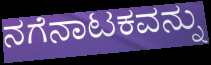
ನಗೆನಾಟಕವನ್ನು